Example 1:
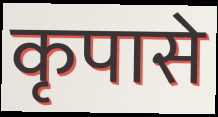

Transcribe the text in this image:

कृपासे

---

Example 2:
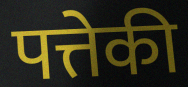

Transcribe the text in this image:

पत्तेकी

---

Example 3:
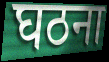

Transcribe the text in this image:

घठना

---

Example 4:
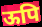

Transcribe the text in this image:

ऊपि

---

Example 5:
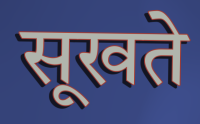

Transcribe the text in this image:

सूखते